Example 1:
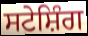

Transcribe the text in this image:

ਸਟੇਸ਼ਿੰਗ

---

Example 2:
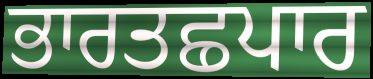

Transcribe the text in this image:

ਭਾਰਤਛਪਾਰ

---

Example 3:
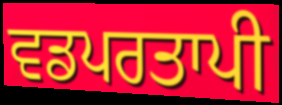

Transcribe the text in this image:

ਵਡਪਰਤਾਪੀ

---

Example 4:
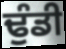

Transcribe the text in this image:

ਢੁੰਡੀ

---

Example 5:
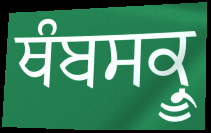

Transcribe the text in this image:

ਥੰਬਸਕ੍ਰੂ